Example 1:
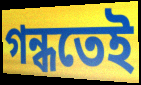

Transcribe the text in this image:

গন্ধতেই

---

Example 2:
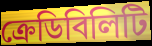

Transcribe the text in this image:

ক্রেডিবিলিটি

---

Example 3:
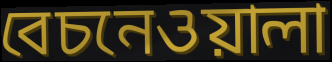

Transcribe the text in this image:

বেচনেওয়ালা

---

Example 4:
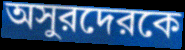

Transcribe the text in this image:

অসুরদেরকে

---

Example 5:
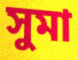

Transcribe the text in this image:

সুমা